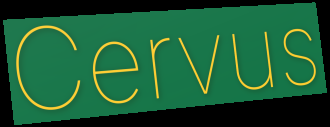
Cervus